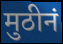
मुठीनं